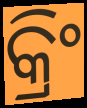
କ୍ରିଂ